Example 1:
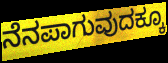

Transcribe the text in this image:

ನೆನಪಾಗುವುದಕ್ಕೂ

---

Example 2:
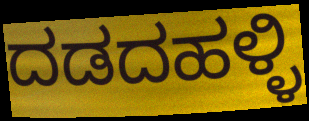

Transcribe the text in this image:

ದಡದಹಳ್ಳಿ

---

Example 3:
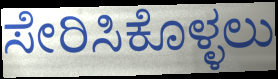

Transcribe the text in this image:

ಸೇರಿಸಿಕೊಳ್ಳಲು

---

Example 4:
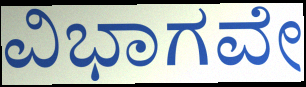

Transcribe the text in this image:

ವಿಭಾಗವೇ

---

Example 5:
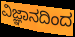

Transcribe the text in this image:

ವಿಜ್ಞಾನದಿಂದ